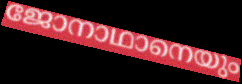
ജോനാഥാനെയും